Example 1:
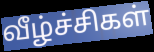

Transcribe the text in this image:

வீழ்ச்சிகள்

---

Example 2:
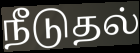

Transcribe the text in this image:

நீடுதல்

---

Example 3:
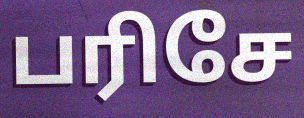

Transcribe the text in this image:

பரிசே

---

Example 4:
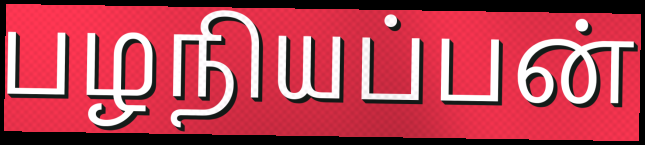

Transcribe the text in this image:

பழநியப்பன்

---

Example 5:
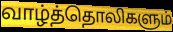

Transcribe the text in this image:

வாழ்த்தொலிகளும்